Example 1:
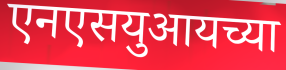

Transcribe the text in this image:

एनएसयुआयच्या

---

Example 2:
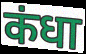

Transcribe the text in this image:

कंधा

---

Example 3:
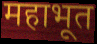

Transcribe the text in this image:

महाभूत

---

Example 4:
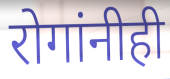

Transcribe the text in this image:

रोगांनीही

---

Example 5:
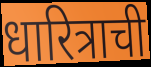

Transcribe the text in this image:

धारित्राची